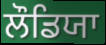
ਲੌਡਿਯਾ